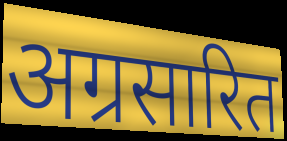
अग्रसारित